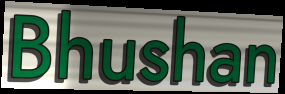
Bhushan